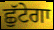
ਛੁੱਟੇਗਾ